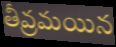
తీవ్రమయిన